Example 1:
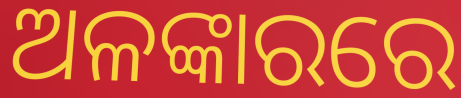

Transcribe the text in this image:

ଅଳଙ୍କାରରେ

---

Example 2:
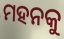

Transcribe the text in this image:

ମହନକୁ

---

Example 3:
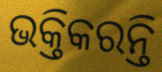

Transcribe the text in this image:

ଭକ୍ତିକରନ୍ତି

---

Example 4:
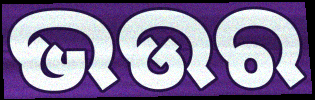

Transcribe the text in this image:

ଭଉର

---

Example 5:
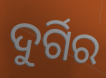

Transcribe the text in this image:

ଦୁର୍ଗିର